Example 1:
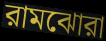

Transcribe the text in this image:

রামঝোরা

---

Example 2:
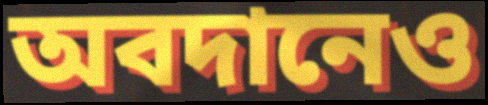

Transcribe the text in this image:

অবদানেও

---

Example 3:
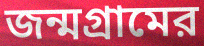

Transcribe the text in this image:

জন্মগ্রামের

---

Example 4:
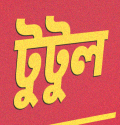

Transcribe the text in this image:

টুটুল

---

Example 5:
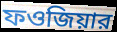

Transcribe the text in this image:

ফওজিয়ার